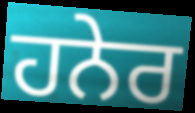
ਹਨੇਰ